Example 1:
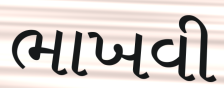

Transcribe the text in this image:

ભાખવી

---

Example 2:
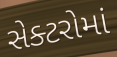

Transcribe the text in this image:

સેક્ટરોમાં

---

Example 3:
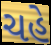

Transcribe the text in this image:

ચહે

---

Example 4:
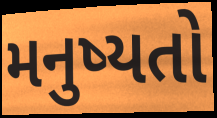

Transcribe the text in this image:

મનુષ્યતો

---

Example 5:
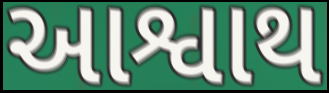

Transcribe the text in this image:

આશ્વાથ